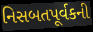
નિસબતપૂર્વકની